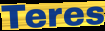
Teres